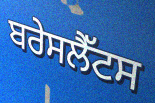
ਬਰੇਸਲੈੱਟਸ